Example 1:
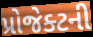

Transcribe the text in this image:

પ્રોજેક્ટની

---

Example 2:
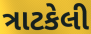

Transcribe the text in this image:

ત્રાટકેલી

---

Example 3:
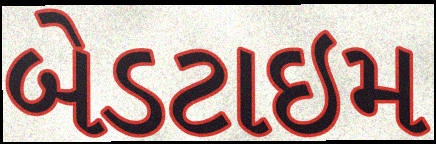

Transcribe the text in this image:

બેડટાઇમ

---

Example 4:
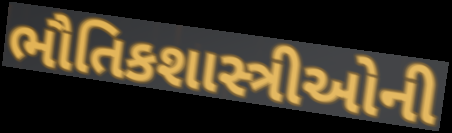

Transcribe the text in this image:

ભૌતિકશાસ્ત્રીઓની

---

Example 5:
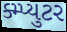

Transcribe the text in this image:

ક્મ્પ્યુટર